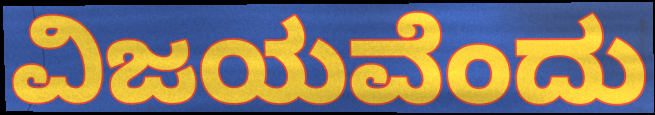
ವಿಜಯವೆಂದು